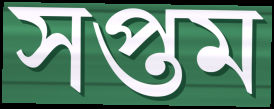
সপ্তম